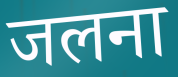
जलना